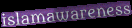
islamawareness